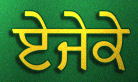
ਏਜੇਕੇ